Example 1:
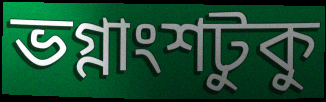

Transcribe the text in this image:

ভগ্নাংশটুকু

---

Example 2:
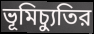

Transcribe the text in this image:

ভূমিচ্যুতির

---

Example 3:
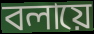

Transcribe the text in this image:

বলায়ে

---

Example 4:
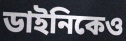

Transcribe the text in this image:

ডাইনিকেও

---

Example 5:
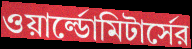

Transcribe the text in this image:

ওয়ার্ল্ডোমিটার্সের